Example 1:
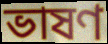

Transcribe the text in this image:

ভাষণ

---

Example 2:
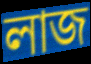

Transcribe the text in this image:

লাজ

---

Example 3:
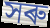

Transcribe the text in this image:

সৰু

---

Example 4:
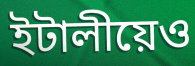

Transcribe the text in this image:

ইটালীয়েও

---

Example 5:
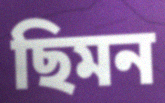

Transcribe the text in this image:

ছিমন